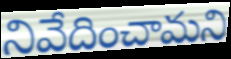
నివేదించామని